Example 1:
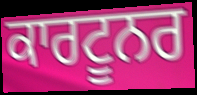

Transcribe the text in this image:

ਕਾਰਟੂਨਰ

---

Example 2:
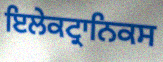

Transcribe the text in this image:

ਇਲੇਕਟ੍ਰਾਨਿਕਸ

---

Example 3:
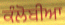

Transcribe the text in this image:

ਕੰਲੋਬੀਆ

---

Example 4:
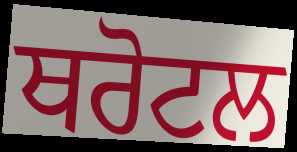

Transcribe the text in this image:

ਥਰੋਟਲ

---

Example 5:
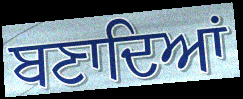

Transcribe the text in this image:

ਬਣਾਦਿਆਂ